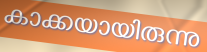
കാക്കയായിരുന്നു